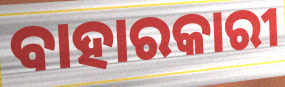
ବାହାରକାରୀ